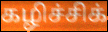
கழிச்சிக்